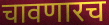
चावणारच